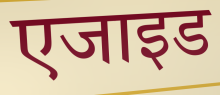
एजाइड